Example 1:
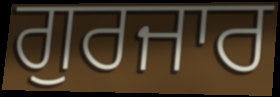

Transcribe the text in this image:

ਗੁਰਜਾਰ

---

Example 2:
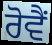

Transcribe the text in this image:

ਰੋਵੈਂ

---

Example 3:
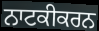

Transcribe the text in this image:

ਨਾਟਕੀਕਰਨ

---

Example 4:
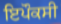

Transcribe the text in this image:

ਇਪੌਕਸੀ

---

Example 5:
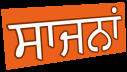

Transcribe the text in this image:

ਸਾਜਨਾਂ